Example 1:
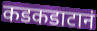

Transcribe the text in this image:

कडकडाटानं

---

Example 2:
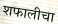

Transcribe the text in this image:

शफालीचा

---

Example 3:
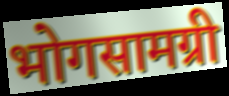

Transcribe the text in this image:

भोगसामग्री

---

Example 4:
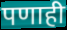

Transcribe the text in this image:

पणाही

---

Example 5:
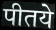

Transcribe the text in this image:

पीतये